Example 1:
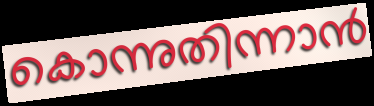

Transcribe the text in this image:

കൊന്നുതിന്നാൻ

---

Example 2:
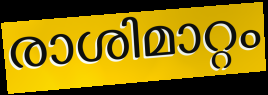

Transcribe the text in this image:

രാശിമാറ്റം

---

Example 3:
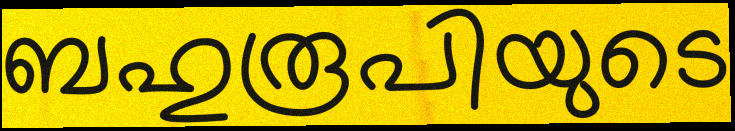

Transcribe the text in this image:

ബഹുരൂപിയുടെ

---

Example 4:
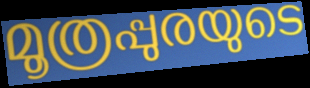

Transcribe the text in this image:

മൂത്രപ്പുരയുടെ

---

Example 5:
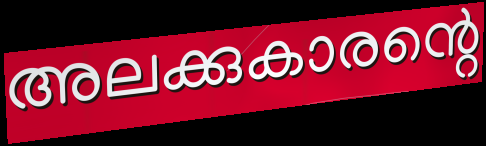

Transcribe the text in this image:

അലക്കുകാരന്റെ